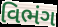
વિભંગ